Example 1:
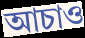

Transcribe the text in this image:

আচাও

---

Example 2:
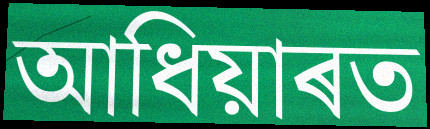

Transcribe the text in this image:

আধিয়াৰত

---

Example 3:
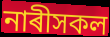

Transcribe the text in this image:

নাৰীসকল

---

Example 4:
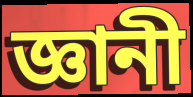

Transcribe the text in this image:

জ্ঞানী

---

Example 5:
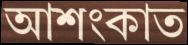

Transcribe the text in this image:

আশংকাত